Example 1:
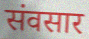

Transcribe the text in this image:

संवसार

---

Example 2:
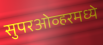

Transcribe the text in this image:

सुपरओव्हरमध्ये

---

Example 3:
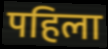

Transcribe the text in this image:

पहिला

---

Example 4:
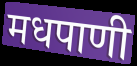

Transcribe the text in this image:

मधपाणी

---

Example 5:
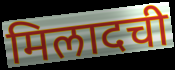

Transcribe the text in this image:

मिलादची